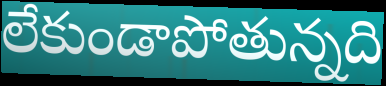
లేకుండాపోతున్నది